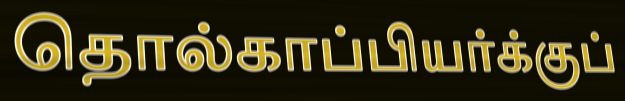
தொல்காப்பியர்க்குப்